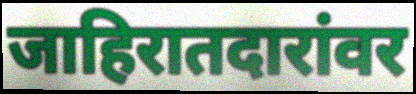
जाहिरातदारांवर